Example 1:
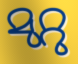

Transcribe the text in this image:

മുറ്റു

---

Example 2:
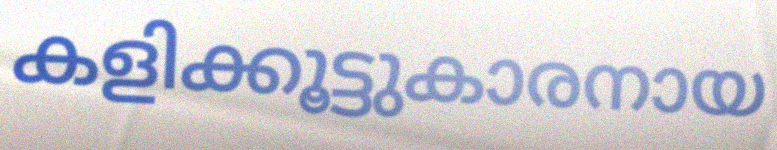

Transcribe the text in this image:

കളിക്കൂട്ടുകാരനായ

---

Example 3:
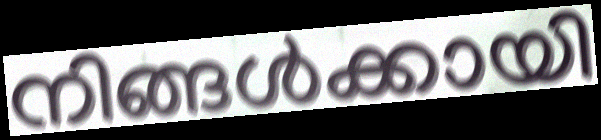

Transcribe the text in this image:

നിങ്ങൾക്കായി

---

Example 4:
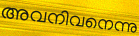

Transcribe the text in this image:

അവനിവനെന്നു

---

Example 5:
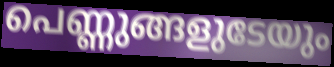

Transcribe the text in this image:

പെണ്ണുങ്ങളുടേയും